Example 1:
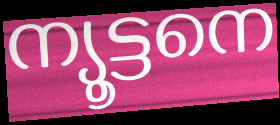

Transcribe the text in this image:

ന്യൂട്ടനെ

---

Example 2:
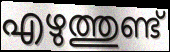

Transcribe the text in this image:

എഴുത്തുണ്ട്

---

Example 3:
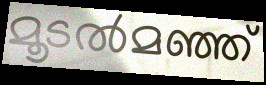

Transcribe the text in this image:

മൂടൽമഞ്ഞ്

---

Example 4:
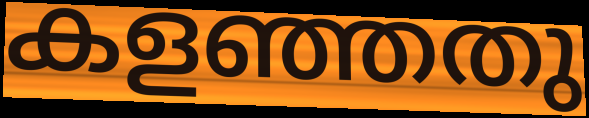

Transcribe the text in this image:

കളഞ്ഞതു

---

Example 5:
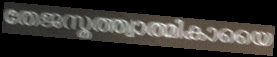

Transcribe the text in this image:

തേജസ്തത്ത്വാത്മികായൈ